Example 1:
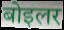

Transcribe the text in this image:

बोइलर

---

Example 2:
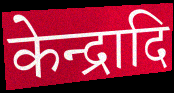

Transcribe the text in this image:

केन्द्रादि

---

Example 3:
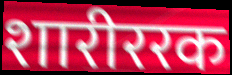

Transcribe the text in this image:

शारीररक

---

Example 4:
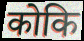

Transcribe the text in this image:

कोकि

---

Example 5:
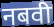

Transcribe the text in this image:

नबवी